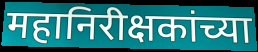
महानिरीक्षकांच्या